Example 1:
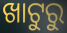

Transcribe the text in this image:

ଖାଟୁରୁ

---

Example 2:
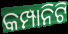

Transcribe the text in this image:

କମ୍ପାନିଟି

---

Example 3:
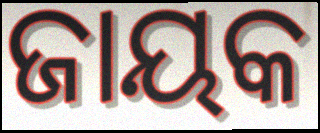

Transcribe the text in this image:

ଜାୟକ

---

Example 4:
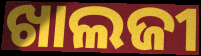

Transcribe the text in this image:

ଖାଲଜୀ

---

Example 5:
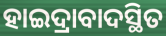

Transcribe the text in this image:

ହାଇଦ୍ରାବାଦସ୍ଥିତ